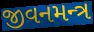
જીવનમન્ત્ર